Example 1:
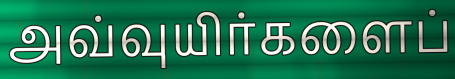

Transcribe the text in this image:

அவ்வுயிர்களைப்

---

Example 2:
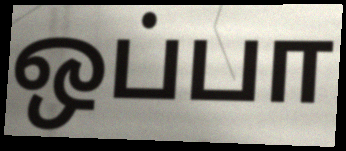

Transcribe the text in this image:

ஒப்பா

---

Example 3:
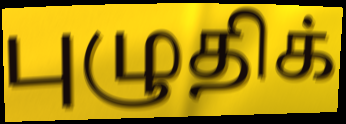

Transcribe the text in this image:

புழுதிக்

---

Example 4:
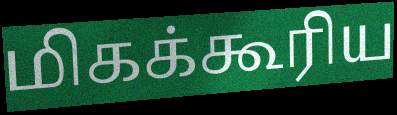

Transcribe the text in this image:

மிகக்கூரிய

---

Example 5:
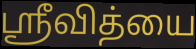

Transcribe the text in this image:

ஸ்ரீவித்யை